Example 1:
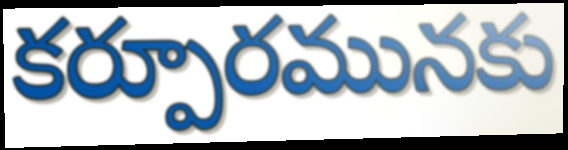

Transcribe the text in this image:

కర్పూరమునకు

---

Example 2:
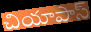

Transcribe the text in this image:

చియాపాస్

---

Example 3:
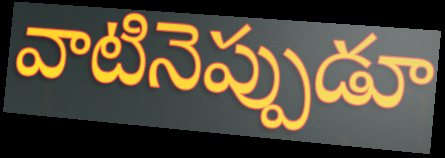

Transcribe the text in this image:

వాటినెప్పుడూ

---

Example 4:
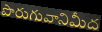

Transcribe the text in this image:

పొరుగువానిమీద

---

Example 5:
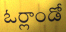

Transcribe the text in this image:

ఓర్లాండో